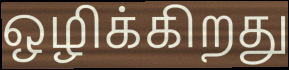
ஒழிக்கிறது